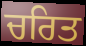
ਚਰਿਤ